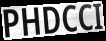
PHDCCI